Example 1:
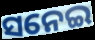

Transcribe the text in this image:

ସନେଇ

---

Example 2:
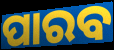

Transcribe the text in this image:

ପାରବ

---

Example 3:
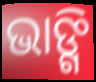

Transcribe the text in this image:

ଭାଙ୍ଗି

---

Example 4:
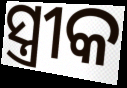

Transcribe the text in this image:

ସ୍ତ୍ରୀକ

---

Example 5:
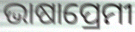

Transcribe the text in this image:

ଭାଷାପ୍ରେମୀ